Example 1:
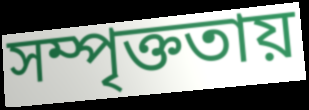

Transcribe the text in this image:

সম্পৃক্ততায়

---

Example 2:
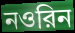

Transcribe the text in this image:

নওরিন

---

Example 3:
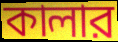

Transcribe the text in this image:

কালার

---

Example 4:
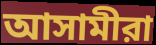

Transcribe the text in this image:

আসামীরা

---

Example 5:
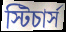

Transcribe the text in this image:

স্টিচার্স